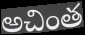
అచింత